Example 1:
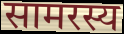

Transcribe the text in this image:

सामरस्य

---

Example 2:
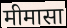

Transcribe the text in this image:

मीमासा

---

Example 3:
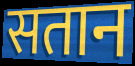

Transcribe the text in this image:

सतान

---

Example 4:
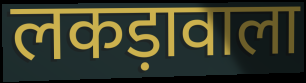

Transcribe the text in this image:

लकड़ावाला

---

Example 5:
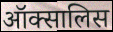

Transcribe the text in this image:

ऑक्सालिस